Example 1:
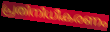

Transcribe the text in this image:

പ്രതിനിധീകരണം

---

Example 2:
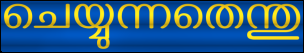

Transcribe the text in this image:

ചെയ്യുന്നതെന്തു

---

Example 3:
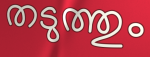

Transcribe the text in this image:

തടുത്തും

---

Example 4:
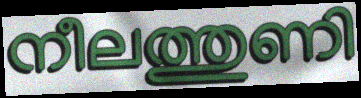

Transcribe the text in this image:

നീലത്തുണി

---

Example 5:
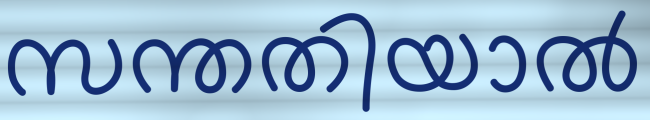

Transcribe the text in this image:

സന്തതിയാൽ